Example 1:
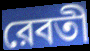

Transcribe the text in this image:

রেবতী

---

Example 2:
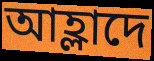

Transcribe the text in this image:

আহ্লাদে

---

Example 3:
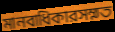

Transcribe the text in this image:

মানবাধিকারসম্মত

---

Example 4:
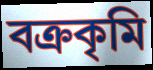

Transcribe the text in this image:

বক্রকৃমি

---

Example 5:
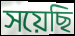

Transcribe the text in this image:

সয়েছি